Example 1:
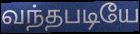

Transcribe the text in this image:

வந்தபடியே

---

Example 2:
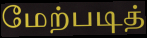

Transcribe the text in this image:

மேற்படித்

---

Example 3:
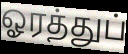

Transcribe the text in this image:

ஓரத்துப்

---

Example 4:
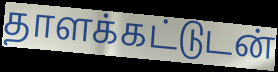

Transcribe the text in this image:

தாளக்கட்டுடன்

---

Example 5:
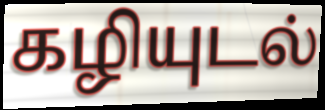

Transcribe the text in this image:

கழியுடல்